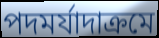
পদমর্যাদাক্রমে